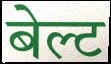
बेल्‍ट